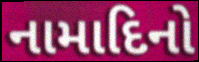
નામાદિનો